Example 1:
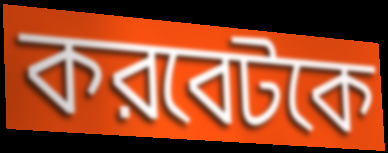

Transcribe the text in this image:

করবেটকে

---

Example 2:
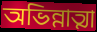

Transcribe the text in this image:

অভিন্নাত্মা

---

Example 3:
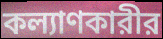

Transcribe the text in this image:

কল্যাণকারীর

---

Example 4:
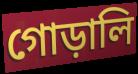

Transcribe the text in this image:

গোড়ালি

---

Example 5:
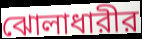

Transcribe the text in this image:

ঝোলাধারীর